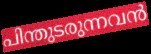
പിന്തുടരുന്നവൻ